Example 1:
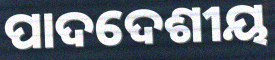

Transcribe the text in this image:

ପାଦଦେଶୀୟ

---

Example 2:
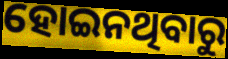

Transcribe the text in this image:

ହୋଇନଥିବାରୁ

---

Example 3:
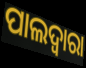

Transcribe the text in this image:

ପାଲଦ୍ୱାରା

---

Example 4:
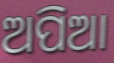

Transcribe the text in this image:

ଅପିଆ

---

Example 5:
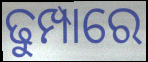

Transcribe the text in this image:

ଢୁମ୍ପାରେ